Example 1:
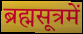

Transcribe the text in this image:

ब्रह्मसूत्रमें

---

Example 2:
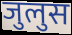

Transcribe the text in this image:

जुलुस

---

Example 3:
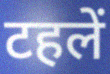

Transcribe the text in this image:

टहलें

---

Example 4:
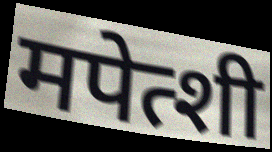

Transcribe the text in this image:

मपेत्शी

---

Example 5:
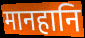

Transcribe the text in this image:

मानहानि